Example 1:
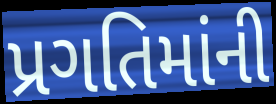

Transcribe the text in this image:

પ્રગતિમાંની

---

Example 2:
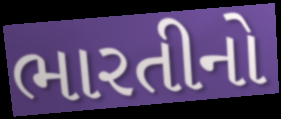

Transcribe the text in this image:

ભારતીનો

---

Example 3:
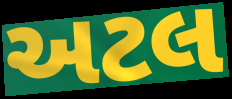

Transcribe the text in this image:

અટલ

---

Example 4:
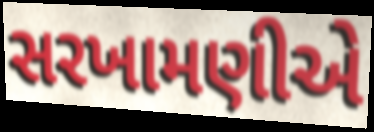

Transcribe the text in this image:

સરખામણીએ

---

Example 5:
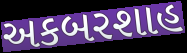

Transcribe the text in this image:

અકબરશાહ